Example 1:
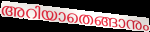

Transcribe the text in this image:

അറിയാതെങ്ങാനും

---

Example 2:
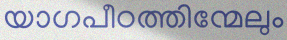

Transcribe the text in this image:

യാഗപീഠത്തിന്മേലും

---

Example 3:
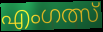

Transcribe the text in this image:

എംഗത്സ്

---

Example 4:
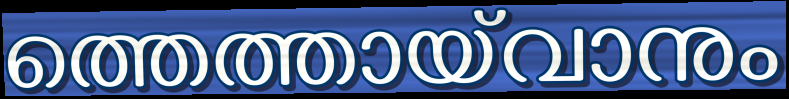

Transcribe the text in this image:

ത്തെത്തായ്‌വാനും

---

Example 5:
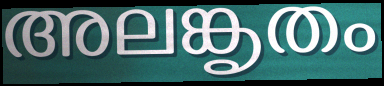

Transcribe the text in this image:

അലങ്കൃതം